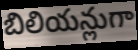
బిలియన్లుగా